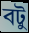
বটু